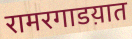
रामरगाडय़ात